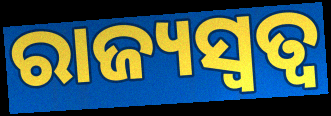
ରାଜ୍ୟସ୍ଵତ୍ଵ